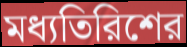
মধ্যতিরিশের